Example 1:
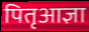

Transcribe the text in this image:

पितृआज्ञा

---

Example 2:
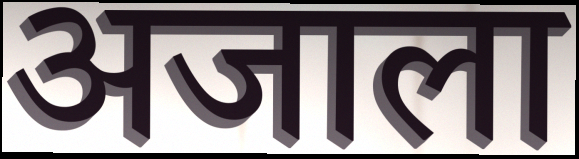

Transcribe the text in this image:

अजाला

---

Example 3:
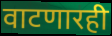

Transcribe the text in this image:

वाटणारही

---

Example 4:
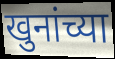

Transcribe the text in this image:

खुनांच्या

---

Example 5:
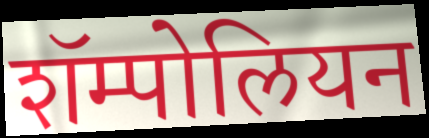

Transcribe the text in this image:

शॅम्पोलियन